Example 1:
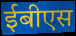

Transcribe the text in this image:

ईबीएस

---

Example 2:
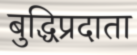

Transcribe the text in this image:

बुद्धिप्रदाता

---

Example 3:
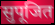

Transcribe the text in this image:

सुपूजित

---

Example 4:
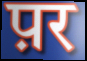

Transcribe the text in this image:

प़र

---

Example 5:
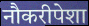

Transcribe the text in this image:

नौकरीपेशा